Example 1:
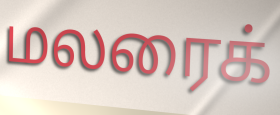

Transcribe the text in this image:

மலரைக்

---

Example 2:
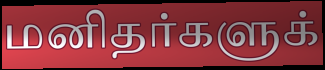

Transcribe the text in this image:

மனிதர்களுக்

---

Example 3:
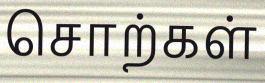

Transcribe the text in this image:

சொற்கள்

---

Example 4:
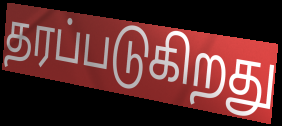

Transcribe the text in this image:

தரப்படுகிறது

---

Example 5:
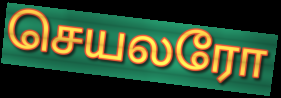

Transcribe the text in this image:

செயலரோ